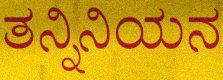
ತನ್ನಿನಿಯನ